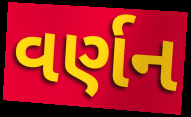
વર્ણન